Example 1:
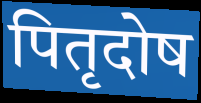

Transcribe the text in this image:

पितृदोष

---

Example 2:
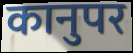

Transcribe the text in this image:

कानुपर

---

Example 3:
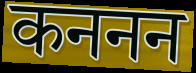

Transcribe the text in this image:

कननन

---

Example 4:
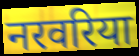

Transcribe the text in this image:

नरवरिया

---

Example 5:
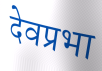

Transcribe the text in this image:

देवप्रभा